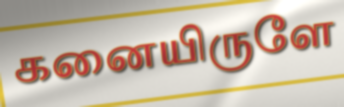
கனையிருளே